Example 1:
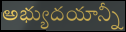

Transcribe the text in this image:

అభ్యుదయాన్నీ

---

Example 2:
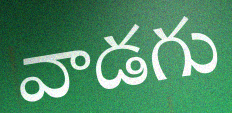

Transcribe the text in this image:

వాడగు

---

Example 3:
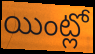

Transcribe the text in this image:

యింట్లో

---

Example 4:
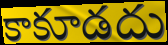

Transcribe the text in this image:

కాకూడదు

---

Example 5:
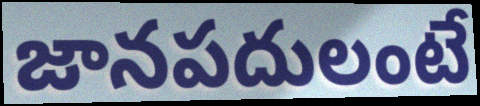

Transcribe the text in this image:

జానపదులంటే